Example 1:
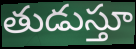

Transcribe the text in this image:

తుడుస్తూ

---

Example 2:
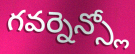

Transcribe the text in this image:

గవర్నెన్స్లో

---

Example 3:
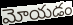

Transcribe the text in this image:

మోయడం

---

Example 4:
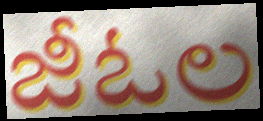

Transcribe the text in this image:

జీఓల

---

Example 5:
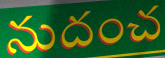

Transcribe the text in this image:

నుదంచ